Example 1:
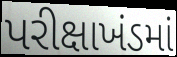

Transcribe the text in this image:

પરીક્ષાખંડમાં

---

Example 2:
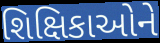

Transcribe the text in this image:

શિક્ષિકાઓને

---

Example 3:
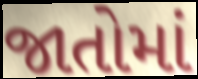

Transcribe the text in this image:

જાતોમાં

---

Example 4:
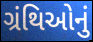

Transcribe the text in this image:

ગ્રંથિઓનું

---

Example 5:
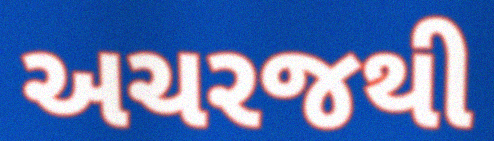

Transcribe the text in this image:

અચરજથી